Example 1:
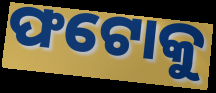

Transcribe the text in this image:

ଫଟୋକୁ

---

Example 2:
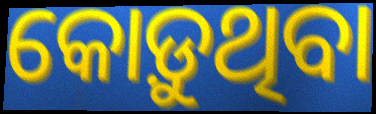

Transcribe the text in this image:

କୋଡ଼ୁଥିବା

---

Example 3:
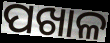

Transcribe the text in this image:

ପଖାଳ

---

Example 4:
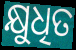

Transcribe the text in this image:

କ୍ଷୁଧିତ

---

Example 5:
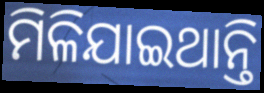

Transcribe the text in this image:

ମିଳିଯାଇଥାନ୍ତି